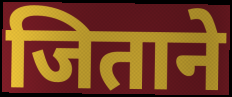
जिताने